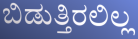
ಬಿಡುತ್ತಿರಲಿಲ್ಲ